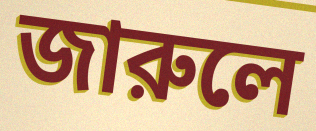
জারুলে